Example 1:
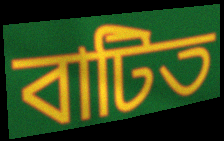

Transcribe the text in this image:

বাটিত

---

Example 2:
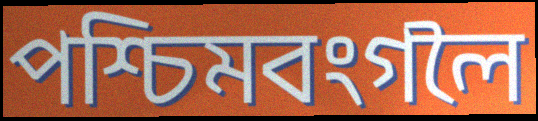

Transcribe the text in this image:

পশ্চিমবংগলৈ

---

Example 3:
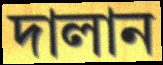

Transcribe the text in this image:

দালান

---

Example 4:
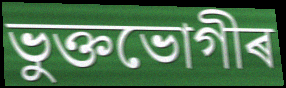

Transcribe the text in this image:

ভুক্তভোগীৰ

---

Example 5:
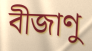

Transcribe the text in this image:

বীজাণু